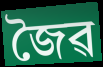
জৈৱ